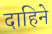
दाहिने